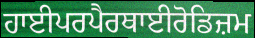
ਹਾਈਪਰਪੈਰਥਾਈਰੋਡਿਜ਼ਮ